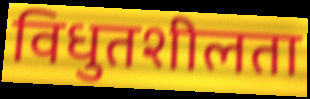
विधुतशीलता